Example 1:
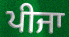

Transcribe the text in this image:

ਪੀਜਾ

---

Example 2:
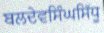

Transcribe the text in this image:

ਬਲਦੇਵਸਿੰਘਸਿੱਧੂ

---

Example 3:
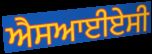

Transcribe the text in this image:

ਐਸਆਈਏਸੀ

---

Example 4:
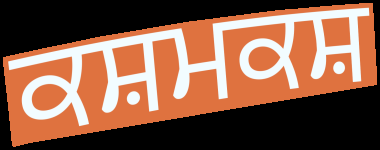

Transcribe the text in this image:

ਕਸ਼ਮਕਸ਼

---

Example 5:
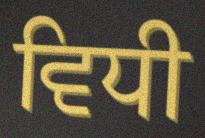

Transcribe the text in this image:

ਵਿਧੀ